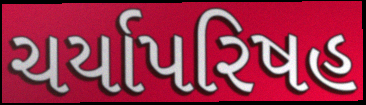
ચર્યાપરિષહ